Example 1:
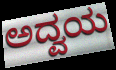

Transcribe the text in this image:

ಅದ್ವಯ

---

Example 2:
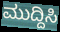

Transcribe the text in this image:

ಮುದ್ದಿಸಿ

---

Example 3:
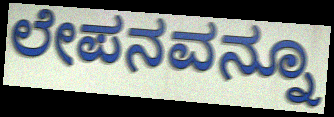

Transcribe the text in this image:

ಲೇಪನವನ್ನೂ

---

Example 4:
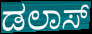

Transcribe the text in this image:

ಡಲಾಸ್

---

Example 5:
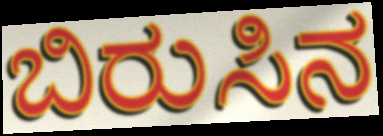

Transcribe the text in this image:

ಬಿರುಸಿನ